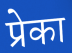
प्रेका